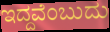
ಇದ್ದವೆಂಬುದು